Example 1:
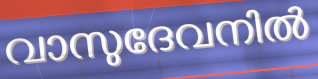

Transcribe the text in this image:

വാസുദേവനിൽ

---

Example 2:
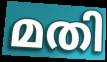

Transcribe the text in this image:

മതി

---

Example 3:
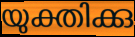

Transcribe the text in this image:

യുക്തിക്കു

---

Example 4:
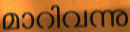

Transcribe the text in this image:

മാറിവന്നു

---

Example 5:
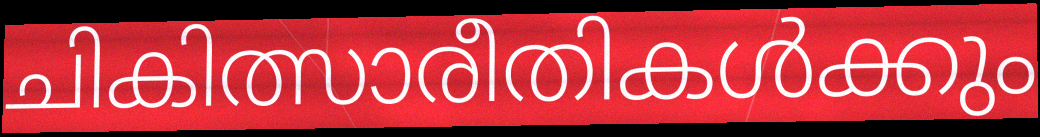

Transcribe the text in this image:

ചികിത്സാരീതികൾക്കും